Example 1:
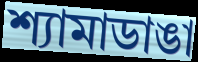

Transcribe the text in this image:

শ্যামাডাঙা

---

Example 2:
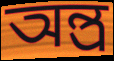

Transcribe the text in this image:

অন্ত্র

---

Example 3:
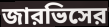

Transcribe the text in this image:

জারভিসের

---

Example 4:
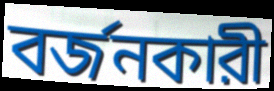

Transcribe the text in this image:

বর্জনকারী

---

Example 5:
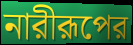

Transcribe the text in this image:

নারীরূপের